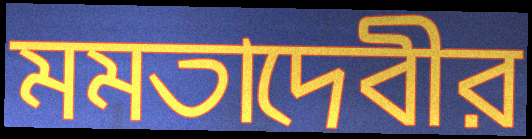
মমতাদেবীর